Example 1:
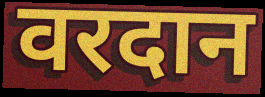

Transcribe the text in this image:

वरदान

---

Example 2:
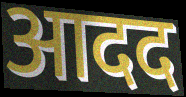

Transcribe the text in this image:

आदद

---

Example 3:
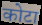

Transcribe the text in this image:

कोटा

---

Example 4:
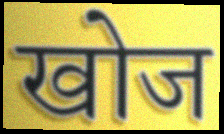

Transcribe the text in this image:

खोज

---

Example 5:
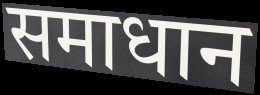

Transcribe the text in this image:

समाधान